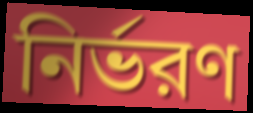
নির্ভরণ